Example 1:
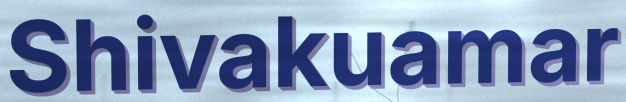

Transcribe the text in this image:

Shivakuamar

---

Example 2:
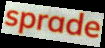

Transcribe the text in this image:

sprade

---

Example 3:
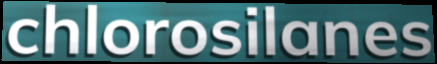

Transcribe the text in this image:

chlorosilanes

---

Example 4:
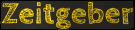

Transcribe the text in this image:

Zeitgeber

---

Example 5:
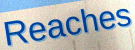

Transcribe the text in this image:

Reaches